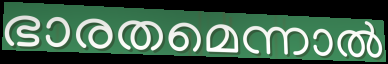
ഭാരതമെന്നാൽ